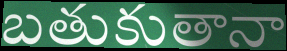
బతుకుతానా